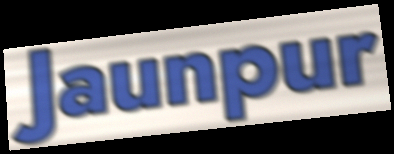
Jaunpur